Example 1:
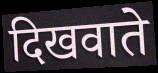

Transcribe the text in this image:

दिखवाते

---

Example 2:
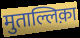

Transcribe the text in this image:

मुताल्लिक़ा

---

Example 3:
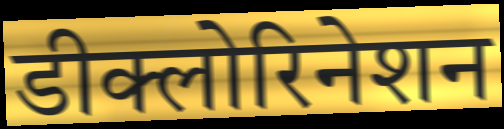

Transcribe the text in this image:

डीक्लोरिनेशन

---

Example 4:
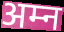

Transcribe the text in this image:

अम्न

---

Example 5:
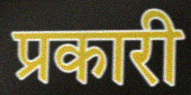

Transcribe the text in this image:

प्रकारी